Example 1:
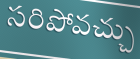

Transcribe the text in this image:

సరిపోవచ్చు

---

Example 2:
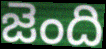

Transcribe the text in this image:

జెంది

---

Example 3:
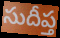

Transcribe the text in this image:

సుదీప్త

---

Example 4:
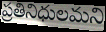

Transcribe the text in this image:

ప్రతినిధులమని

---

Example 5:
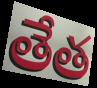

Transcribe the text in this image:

తేత